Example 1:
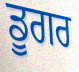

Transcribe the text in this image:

ਡੂਗਰ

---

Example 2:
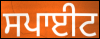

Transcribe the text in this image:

ਸਪਾਈਟ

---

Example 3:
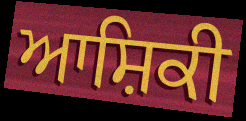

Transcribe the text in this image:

ਆਸ਼ਿਕੀ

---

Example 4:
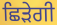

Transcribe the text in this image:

ਛਿੜੇਗੀ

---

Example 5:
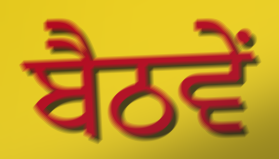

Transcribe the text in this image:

ਬੈਠਵੇਂ